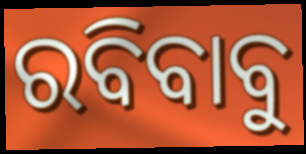
ରବିବାବୁ